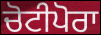
ਚੋਟੀਪੋਰਾ